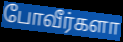
போவீர்களா